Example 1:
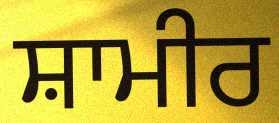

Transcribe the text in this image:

ਸ਼ਾਮੀਰ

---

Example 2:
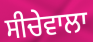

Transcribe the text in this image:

ਸੀਚੇਵਾਲਾ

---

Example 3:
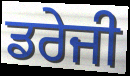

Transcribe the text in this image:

ਡਰੇਜੀ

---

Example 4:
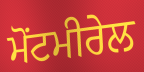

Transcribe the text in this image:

ਮੋਂਟਮੀਰੇਲ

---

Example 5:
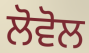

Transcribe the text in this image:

ਲੋਵੋਲ